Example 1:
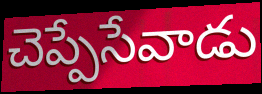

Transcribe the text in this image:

చెప్పేసేవాడు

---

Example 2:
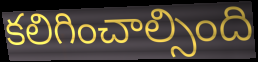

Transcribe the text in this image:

కలిగించాల్సింది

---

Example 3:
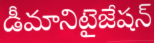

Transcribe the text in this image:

డీమానిటైజేషన్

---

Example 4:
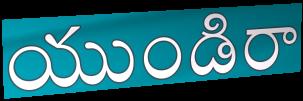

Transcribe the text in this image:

యుండిరా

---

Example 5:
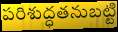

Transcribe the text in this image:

పరిశుద్ధతనుబట్టి